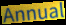
Annual